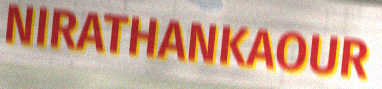
NIRATHANKAOUR